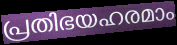
പ്രതിഭയഹരമാം